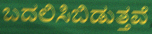
ಬದಲಿಸಿಬಿಡುತ್ತವೆ